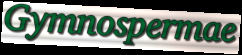
Gymnospermae